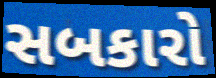
સબકારો